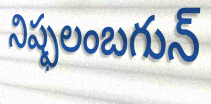
నిష్ఫలంబగున్